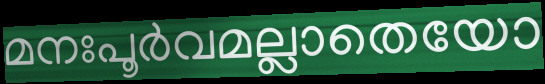
മനഃപൂർവമല്ലാതെയോ